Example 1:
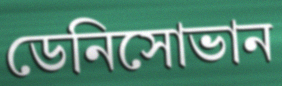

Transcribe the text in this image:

ডেনিসোভান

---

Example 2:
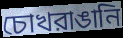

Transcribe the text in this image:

চোখরাঙানি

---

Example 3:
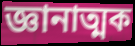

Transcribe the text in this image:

জ্ঞানাত্মক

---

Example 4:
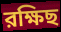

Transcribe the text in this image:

রক্ষিছ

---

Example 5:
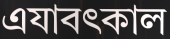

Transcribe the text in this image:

এযাবৎকাল